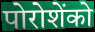
पोरोशेंको